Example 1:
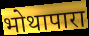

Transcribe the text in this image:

भोथापारा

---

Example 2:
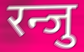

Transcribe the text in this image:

रन्जु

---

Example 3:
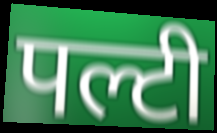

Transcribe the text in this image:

पल्टी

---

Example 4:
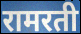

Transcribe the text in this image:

रामरती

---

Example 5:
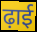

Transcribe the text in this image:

ढ़ाई